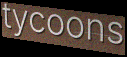
tycoons